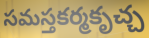
సమస్తకర్మకృచ్చ